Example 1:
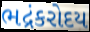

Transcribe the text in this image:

ભદ્રંકરોદય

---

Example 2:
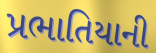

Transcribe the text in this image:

પ્રભાતિયાની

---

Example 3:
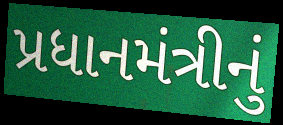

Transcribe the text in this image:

પ્રધાનમંત્રીનું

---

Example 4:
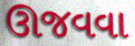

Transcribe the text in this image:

ઊજવવા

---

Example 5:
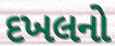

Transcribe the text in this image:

દખલનો